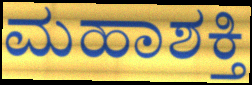
ಮಹಾಶಕ್ತಿ